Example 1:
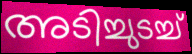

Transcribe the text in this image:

അടിച്ചുടച്ച്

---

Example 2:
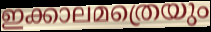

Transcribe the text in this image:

ഇക്കാലമത്രെയും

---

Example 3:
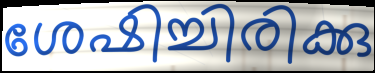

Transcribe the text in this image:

ശേഷിച്ചിരിക്കു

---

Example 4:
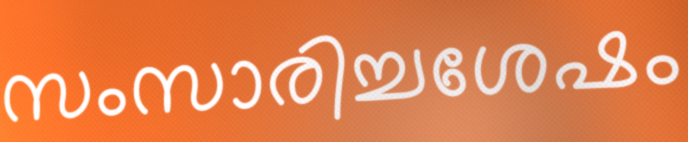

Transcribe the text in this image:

സംസാരിച്ചശേഷം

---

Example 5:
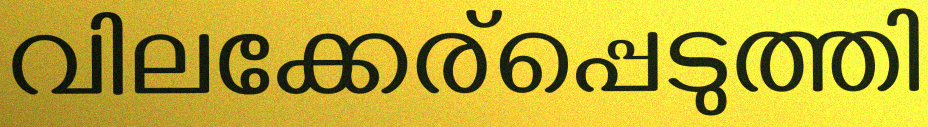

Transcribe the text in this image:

വിലക്കേര്പ്പെടുത്തി